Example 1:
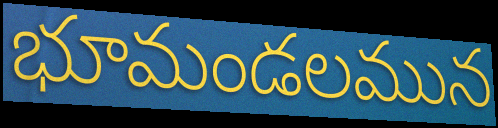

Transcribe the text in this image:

భూమండలమున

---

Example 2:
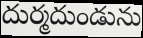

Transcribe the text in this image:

దుర్మదుండును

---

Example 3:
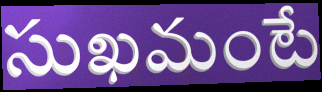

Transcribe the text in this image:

సుఖమంటే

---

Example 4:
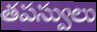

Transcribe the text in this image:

తపస్వులు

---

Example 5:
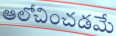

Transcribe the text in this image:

ఆలోచించడమే